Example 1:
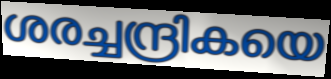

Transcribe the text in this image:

ശരച്ചന്ദ്രികയെ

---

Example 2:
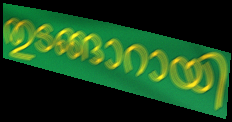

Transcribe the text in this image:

തുടങ്ങാറായി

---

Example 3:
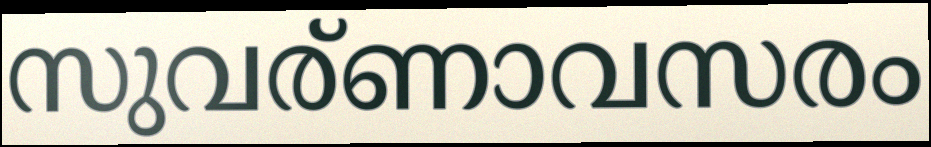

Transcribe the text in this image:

സുവര്ണാവസരം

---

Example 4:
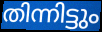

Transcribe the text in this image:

തിന്നിട്ടും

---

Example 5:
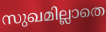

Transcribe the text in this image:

സുഖമില്ലാതെ